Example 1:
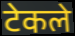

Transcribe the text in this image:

टेकले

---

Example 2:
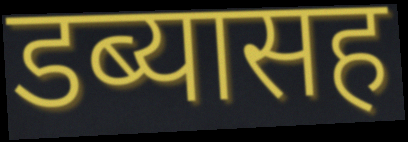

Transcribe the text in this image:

डब्यासह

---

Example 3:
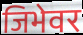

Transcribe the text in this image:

जिभेवर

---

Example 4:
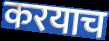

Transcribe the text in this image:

करयाच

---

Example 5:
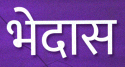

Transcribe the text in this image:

भेदास